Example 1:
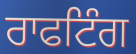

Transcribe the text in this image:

ਰਾਫਟਿੰਗ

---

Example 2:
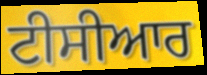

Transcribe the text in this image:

ਟੀਸੀਆਰ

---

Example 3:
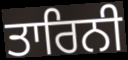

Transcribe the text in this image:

ਤਾਰਿਨੀ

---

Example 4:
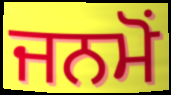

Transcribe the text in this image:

ਜਨਮੋਂ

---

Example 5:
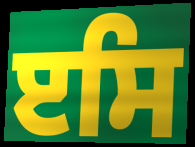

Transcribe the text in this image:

ੲਸਿ